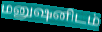
மனுஷனிடம்